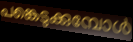
പങ്കെടുക്കുമ്പോൾ